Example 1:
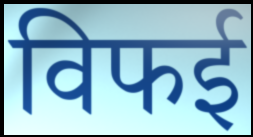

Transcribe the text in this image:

विफई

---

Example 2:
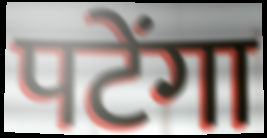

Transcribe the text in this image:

पटेंगा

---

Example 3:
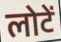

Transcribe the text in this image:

लोटें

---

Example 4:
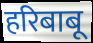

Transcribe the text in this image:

हरिबाबू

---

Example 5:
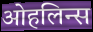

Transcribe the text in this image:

ओहलिन्स